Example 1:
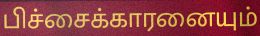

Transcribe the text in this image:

பிச்சைக்காரனையும்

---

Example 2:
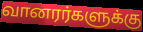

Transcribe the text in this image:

வானரர்களுக்கு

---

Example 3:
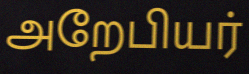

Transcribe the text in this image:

அறேபியர்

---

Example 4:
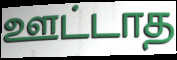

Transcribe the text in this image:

ஊட்டாத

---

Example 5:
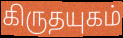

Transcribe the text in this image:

கிருதயுகம்